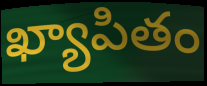
ఖ్యాపితం